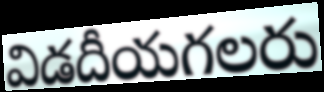
విడదీయగలరు